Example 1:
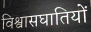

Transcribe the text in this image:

विश्वासघातियों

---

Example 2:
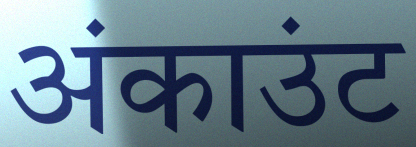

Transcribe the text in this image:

अंकाउंट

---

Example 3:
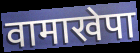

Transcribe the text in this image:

वामाखेपा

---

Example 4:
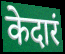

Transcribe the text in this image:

केदारं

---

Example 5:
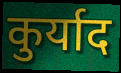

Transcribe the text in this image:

कुर्याद